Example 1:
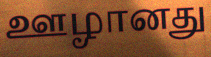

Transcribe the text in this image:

ஊழானது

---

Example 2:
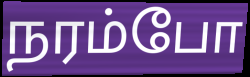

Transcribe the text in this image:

நரம்போ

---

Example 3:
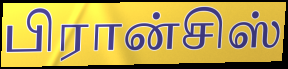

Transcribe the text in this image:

பிரான்சிஸ்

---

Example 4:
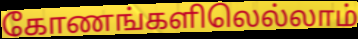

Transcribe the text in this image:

கோணங்களிலெல்லாம்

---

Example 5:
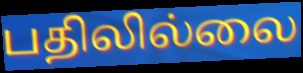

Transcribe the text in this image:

பதிலில்லை